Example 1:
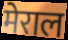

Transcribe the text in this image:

मेराल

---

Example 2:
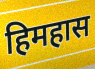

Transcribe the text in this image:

हिमहास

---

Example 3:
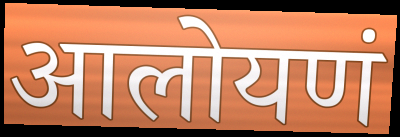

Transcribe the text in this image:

आलोयणं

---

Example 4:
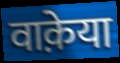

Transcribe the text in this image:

वाक़ेया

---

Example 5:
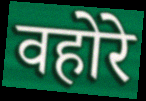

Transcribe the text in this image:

वहोरे